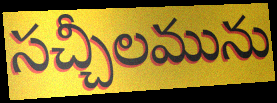
సచ్చీలమును